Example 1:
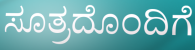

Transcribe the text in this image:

ಸೂತ್ರದೊಂದಿಗೆ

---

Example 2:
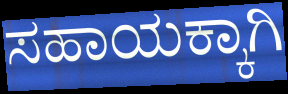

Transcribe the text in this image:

ಸಹಾಯಕ್ಕಾಗಿ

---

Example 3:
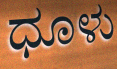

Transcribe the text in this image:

ಧೂಳು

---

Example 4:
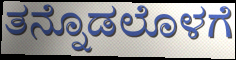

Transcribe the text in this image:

ತನ್ನೊಡಲೊಳಗೆ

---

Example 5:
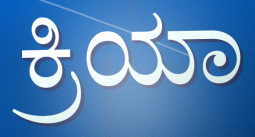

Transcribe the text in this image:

ಕ್ರಿಯಾ